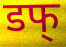
डफ्